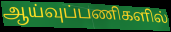
ஆய்வுப்பணிகளில்